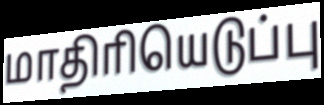
மாதிரியெடுப்பு